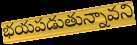
భయపడుతున్నావని